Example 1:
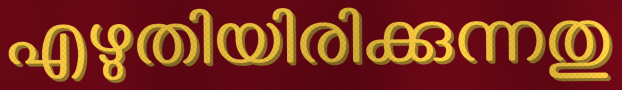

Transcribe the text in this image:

എഴുതിയിരിക്കുന്നതു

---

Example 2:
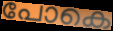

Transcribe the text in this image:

പോകെ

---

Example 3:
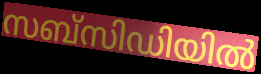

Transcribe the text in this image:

സബ്സിഡിയിൽ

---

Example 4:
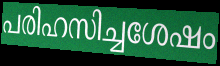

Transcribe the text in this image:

പരിഹസിച്ചശേഷം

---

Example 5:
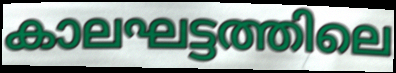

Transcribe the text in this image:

കാലഘട്ടത്തിലെ